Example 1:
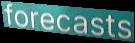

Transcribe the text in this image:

forecasts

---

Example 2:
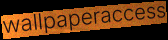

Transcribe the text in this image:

wallpaperaccess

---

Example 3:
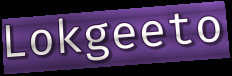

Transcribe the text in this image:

Lokgeeto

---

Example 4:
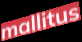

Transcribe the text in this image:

mallitus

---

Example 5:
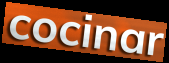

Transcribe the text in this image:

cocinar